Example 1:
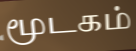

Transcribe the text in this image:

மூடகம்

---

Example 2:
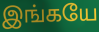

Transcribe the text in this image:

இங்கயே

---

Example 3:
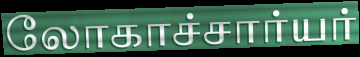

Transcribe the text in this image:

லோகாச்சார்யர்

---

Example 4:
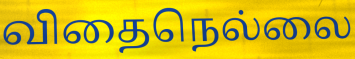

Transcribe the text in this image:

விதைநெல்லை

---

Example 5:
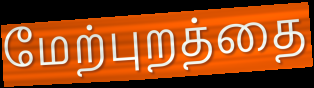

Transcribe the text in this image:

மேற்புறத்தை